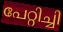
പേറ്റിച്ചി